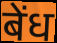
बेंध